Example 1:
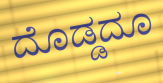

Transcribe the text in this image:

ದೊಡ್ಡದೂ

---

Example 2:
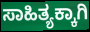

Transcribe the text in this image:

ಸಾಹಿತ್ಯಕ್ಕಾಗಿ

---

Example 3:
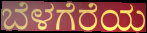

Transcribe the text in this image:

ಬೆಳಗೆರೆಯ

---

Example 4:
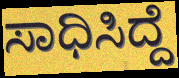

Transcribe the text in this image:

ಸಾಧಿಸಿದ್ದೆ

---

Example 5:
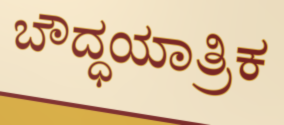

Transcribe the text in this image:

ಬೌದ್ಧಯಾತ್ರಿಕ